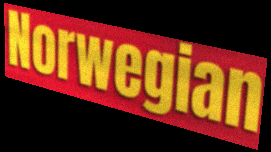
Norwegian